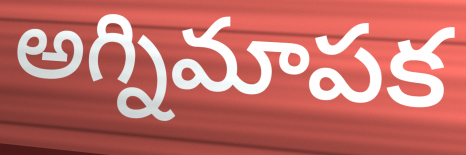
అగ్నిమాపక